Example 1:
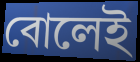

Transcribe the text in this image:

বোলেই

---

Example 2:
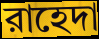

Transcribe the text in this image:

রাহেদা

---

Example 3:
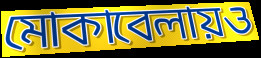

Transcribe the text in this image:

মোকাবেলায়ও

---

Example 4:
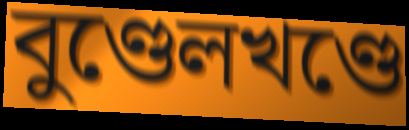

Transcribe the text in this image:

বুণ্ডেলখণ্ডে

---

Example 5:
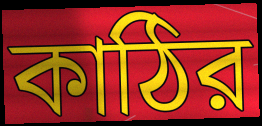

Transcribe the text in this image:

কাঠির